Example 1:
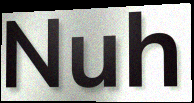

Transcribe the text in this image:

Nuh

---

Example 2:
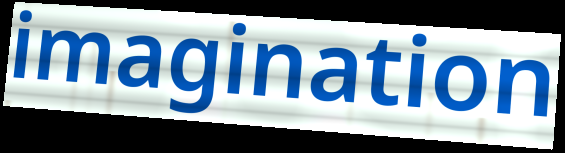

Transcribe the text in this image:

imagination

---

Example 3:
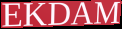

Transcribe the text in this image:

EKDAM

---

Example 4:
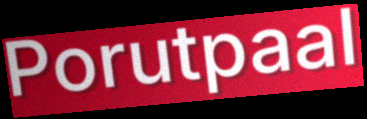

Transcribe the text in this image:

Porutpaal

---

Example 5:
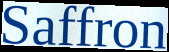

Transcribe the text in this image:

Saffron